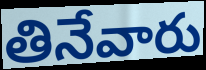
తినేవారు